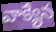
వాక్యేన